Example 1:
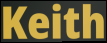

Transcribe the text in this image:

Keith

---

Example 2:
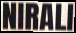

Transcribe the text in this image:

NIRALI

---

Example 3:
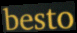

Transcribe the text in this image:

besto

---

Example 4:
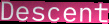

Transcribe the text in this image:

Descent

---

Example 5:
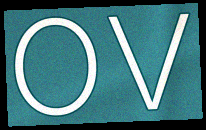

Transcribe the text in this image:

ov